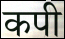
कपी